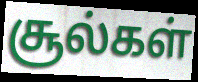
சூல்கள்